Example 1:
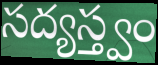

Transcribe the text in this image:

సద్యస్త్వం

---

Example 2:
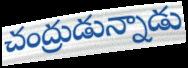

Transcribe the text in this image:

చంద్రుడున్నాడు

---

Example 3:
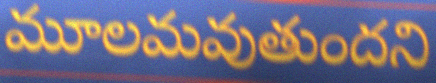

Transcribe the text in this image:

మూలమవుతుందని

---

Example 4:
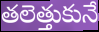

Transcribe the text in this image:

తలెత్తుకునే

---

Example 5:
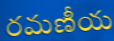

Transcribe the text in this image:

రమణీయ